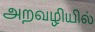
அறவழியில்